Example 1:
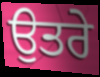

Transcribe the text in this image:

ਉਤਰੇ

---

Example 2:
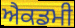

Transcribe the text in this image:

ਐਕਡਮੀ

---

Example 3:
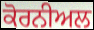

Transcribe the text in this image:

ਕੋਰਨੀਅਲ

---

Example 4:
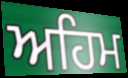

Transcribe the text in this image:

ਅਹਿਮ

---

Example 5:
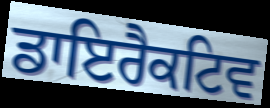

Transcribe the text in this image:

ਡਾਇਰੈਕਟਿਵ